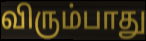
விரும்பாது